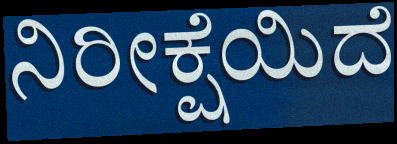
ನಿರೀಕ್ಷೆಯಿದೆ